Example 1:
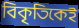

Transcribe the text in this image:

বিকৃতিকেই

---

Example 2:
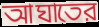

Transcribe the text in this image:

আঘাতের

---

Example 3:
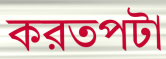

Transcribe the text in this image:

করতপটা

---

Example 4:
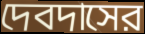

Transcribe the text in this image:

দেবদাসের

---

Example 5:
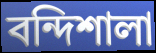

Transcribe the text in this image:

বন্দিশালা